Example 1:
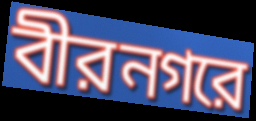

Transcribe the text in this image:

বীরনগরে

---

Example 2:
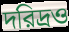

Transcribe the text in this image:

দরিদ্রও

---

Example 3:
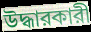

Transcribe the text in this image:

উদ্ধারকারী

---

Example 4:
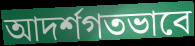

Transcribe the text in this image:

আদর্শগতভাবে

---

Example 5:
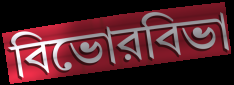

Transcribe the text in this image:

বিভোরবিভা